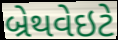
બ્રેથવેઇટે